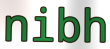
nibh